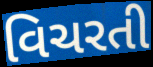
વિચરતી